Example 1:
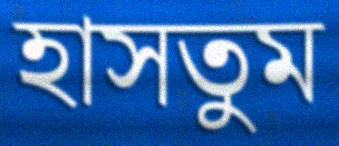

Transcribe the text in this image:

হাসতুম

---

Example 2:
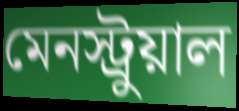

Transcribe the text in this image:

মেনস্ট্রুয়াল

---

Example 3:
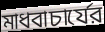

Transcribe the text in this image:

মাধবাচার্যের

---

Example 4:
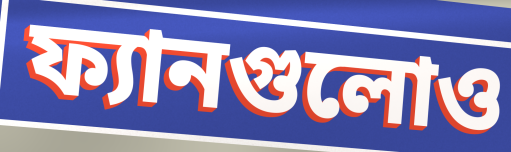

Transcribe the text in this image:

ফ্যানগুলোও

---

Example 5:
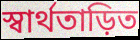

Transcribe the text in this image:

স্বার্থতাড়িত